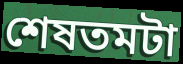
শেষতমটা